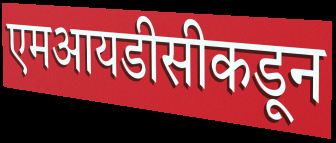
एमआयडीसीकडून